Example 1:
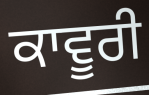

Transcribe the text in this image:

ਕਾਵੂਰੀ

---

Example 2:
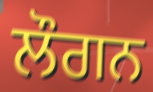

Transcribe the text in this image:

ਲੌਗਨ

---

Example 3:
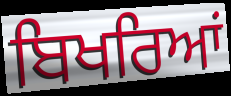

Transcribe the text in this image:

ਬਿਖਰਿਆਂ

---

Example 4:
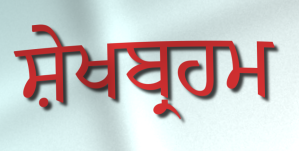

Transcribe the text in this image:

ਸ਼ੇਖਬ੍ਰਹਮ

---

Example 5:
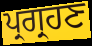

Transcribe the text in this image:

ਪ੍ਰਗ੍ਰਹਣ